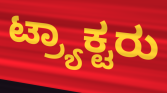
ಟ್ರ್ಯಾಕ್ಟರು